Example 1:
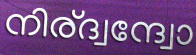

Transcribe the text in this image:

നിര്ദ്വന്ദ്വോ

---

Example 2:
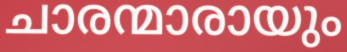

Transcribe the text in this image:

ചാരന്മാരായും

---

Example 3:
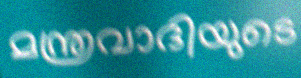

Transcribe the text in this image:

മന്ത്രവാദിയുടെ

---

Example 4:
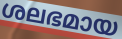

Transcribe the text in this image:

ശലഭമായ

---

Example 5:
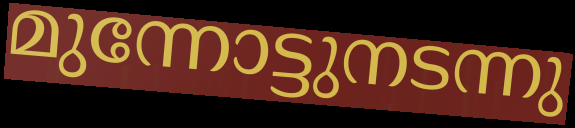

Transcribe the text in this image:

മുന്നോട്ടുനടന്നു